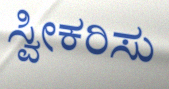
ಸ್ವೀಕರಿಸು